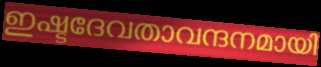
ഇഷ്ടദേവതാവന്ദനമായി